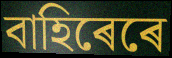
বাহিৰেৰে